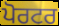
ਪੋਰਟਰ